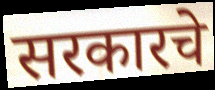
सरकारचे